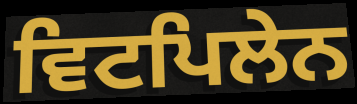
ਵਿਟਪਿਲੇਨ